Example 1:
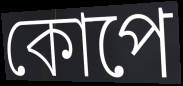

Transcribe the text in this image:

কোপে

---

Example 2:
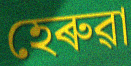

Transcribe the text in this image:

হেৰুৱা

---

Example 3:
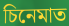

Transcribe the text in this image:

চিনেমাত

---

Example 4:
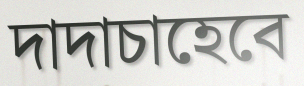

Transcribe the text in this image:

দাদাচাহেবে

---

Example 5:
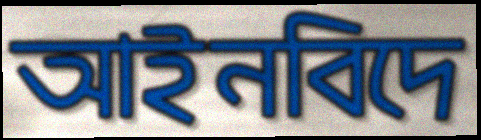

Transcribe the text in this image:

আইনবিদে